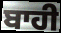
ਬਾਹੀ